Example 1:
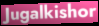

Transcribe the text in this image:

Jugalkishor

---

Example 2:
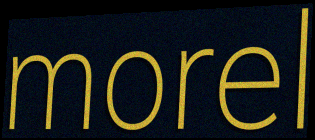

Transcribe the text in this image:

morel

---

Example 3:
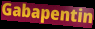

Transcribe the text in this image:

Gabapentin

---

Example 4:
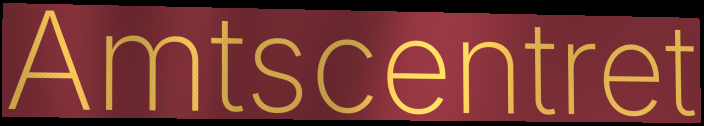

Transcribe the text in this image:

Amtscentret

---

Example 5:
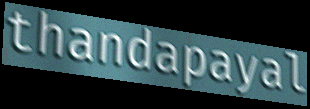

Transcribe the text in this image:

thandapayal